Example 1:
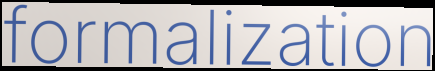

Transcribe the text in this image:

formalization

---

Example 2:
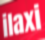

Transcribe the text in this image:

ilaxi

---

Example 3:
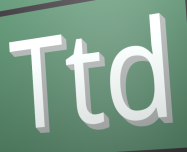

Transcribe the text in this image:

Ttd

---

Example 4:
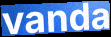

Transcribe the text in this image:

vanda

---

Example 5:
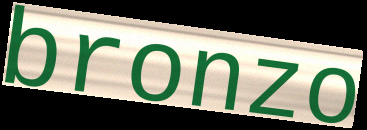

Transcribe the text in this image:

bronzo